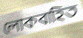
লোকবাহিত